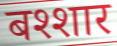
बश्शार